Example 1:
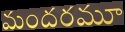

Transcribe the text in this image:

మందరమూ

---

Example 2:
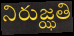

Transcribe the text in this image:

నిరుజ్ఝతి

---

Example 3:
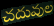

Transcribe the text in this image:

చదువుల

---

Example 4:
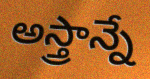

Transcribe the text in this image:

అస్త్రాన్నే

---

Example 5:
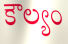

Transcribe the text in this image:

కౌల్యం